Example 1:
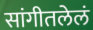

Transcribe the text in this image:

सांगीतलेलं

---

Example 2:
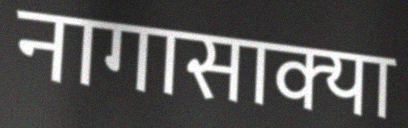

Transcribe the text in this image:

नागासाक्या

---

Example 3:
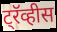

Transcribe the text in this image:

ट्रॅव्हीस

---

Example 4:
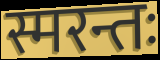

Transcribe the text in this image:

स्मरन्तः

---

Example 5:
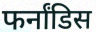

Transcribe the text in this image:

फर्नांडिस